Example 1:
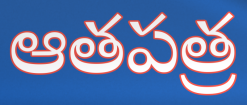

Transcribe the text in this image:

ఆతపత్ర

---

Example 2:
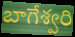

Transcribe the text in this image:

బాగేశ్వరి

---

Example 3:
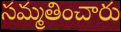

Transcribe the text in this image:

సమ్మతించారు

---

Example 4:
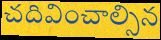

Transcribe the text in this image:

చదివించాల్సిన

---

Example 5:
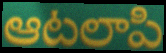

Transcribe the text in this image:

ఆటలాపి